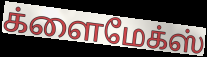
க்ளைமேக்ஸ்